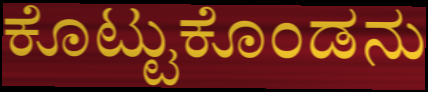
ಕೊಟ್ಟುಕೊಂಡನು